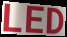
LED